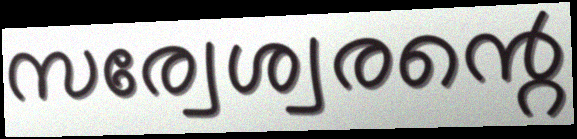
സര്വേശ്വരന്റെ